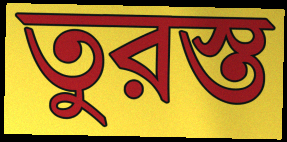
তুরস্ত